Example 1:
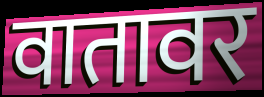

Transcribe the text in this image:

वातावर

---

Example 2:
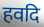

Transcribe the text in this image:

हवदि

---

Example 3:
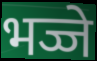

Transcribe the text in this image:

भज्जे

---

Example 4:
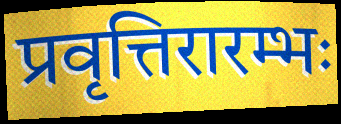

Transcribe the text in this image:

प्रवृत्तिरारम्भः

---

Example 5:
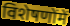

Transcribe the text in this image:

विशेषणोंमें